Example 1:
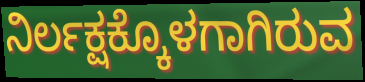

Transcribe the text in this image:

ನಿರ್ಲಕ್ಷಕ್ಕೊಳಗಾಗಿರುವ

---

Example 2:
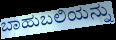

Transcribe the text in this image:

ಬಾಹುಬಲಿಯನ್ನು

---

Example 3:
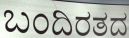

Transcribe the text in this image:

ಬಂದಿರತದ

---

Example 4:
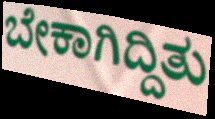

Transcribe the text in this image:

ಬೇಕಾಗಿದ್ದಿತು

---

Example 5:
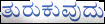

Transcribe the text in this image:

ತುರುಕುವುದು